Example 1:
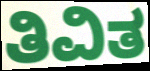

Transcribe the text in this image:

ತಿವಿತ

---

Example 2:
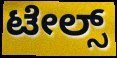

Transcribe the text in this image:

ಟೇಲ್ಸ್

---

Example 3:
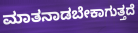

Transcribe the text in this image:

ಮಾತನಾಡಬೇಕಾಗುತ್ತದೆ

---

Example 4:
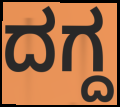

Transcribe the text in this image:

ದಗ್ದ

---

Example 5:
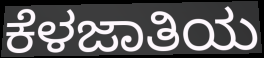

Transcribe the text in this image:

ಕೆಳಜಾತಿಯ